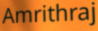
Amrithraj